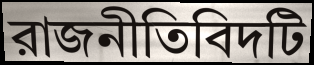
রাজনীতিবিদটি